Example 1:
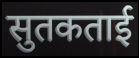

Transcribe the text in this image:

सुतकताई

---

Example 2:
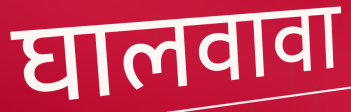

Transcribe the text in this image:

घालवावा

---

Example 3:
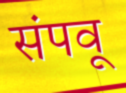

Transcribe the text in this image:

संपवू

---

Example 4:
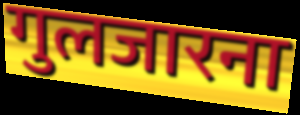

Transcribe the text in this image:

गुलजारना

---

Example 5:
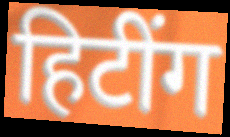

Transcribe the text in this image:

हिटींग